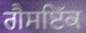
ਗੈਸਇੱਕ